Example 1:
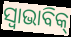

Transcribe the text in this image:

ସ୍ଵାଭାବିକ୍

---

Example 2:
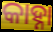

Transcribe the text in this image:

କାହ୍ନା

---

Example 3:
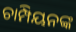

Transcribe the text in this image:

ଚାମ୍ପିୟନଙ୍କ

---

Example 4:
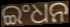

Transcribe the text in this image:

ଇଂଧନ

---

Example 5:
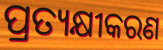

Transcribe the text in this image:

ପ୍ରତ୍ୟକ୍ଷୀକରଣ